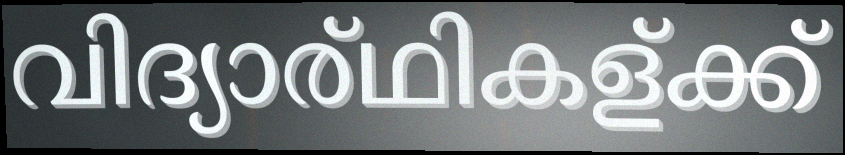
വിദ്യാര്ഥികള്ക്ക്